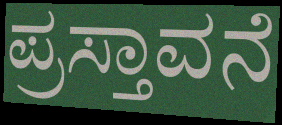
ಪ್ರಸ್ತಾವನೆ